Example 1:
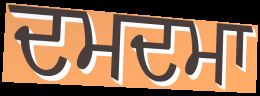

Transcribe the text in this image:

ਦਮਦਮਾ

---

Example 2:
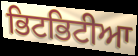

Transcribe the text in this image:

ਭਿਟਭਿਟੀਆ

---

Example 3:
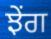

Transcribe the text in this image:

ਝੇਂਗ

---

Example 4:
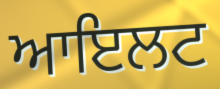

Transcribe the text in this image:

ਆਇਲਟ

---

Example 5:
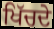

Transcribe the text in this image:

ਖਿੱਚਦੇ